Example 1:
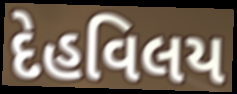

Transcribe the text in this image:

દેહવિલય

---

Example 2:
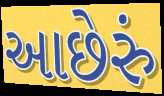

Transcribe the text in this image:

આછેરું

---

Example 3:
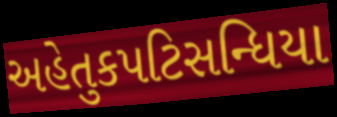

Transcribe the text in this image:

અહેતુકપટિસન્ધિયા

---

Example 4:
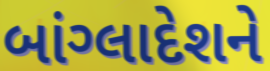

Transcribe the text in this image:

બાંગ્લાદેશને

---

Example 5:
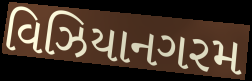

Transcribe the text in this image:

વિઝિયાનગરમ